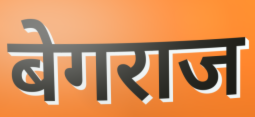
बेगराज